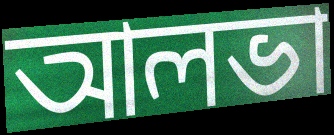
আলভা